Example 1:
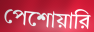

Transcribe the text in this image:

পেশোয়ারি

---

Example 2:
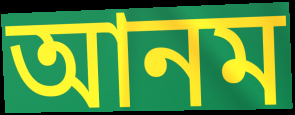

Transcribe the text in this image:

আনম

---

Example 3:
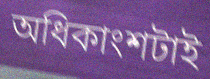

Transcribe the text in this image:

অধিকাংশটাই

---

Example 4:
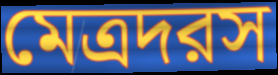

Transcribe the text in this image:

মেত্রদরস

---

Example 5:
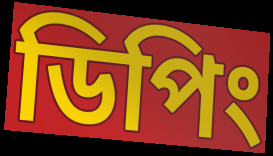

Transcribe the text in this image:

ডিপিং